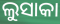
ଲୁସାକା